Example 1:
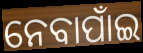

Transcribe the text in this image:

ନେବାପାଁଇ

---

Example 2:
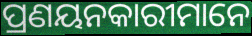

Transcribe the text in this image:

ପ୍ରଣୟନକାରୀମାନେ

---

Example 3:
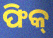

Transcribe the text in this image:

ଫିକ୍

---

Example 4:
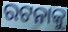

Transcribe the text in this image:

ରଟନାକୁ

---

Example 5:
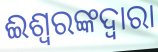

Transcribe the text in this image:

ଈଶ୍ୱରଙ୍କଦ୍ୱାରା